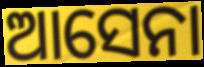
ଆସେନା